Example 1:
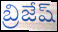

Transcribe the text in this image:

బ్రిజేష్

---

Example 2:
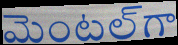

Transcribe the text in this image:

మెంటల్‌గా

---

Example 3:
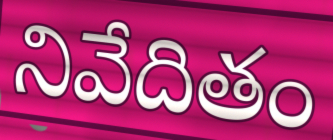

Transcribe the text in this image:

నివేదితం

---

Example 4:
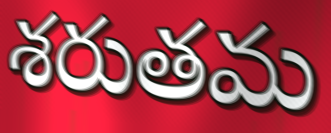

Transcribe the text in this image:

శరుతమ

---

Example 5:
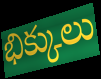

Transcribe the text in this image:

భిక్కులు